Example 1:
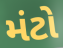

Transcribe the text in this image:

મંટો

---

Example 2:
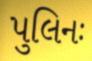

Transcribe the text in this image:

પુલિનઃ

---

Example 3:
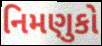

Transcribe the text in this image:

નિમણુકો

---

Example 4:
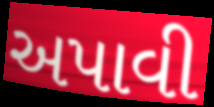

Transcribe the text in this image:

અપાવી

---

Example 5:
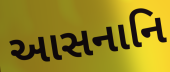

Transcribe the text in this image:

આસનાનિ